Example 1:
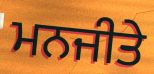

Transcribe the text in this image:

ਮਨਜੀਤੇ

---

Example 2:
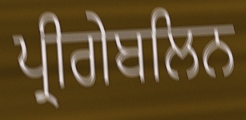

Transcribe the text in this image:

ਪ੍ਰੀਗੇਬਲਿਨ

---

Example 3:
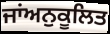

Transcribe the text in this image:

ਜਾਂਅਨੁਕੂਲਿਤ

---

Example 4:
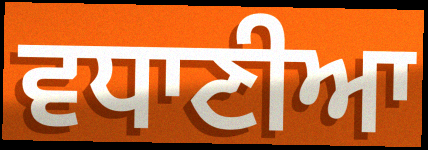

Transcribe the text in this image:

ਵਧਾਣੀਆ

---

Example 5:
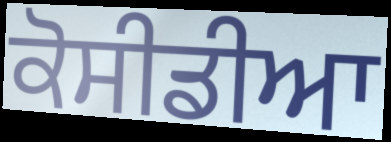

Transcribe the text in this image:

ਕੋਸੀਡੀਆ